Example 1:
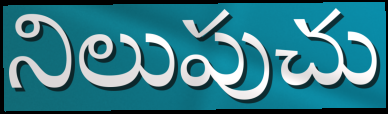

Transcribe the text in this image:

నిలుపుచు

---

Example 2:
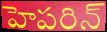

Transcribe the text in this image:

హెపరిన్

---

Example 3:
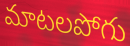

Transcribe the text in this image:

మాటలపోగు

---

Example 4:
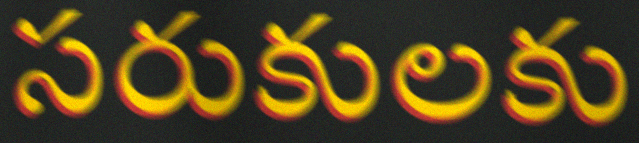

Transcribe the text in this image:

సరుకులకు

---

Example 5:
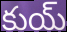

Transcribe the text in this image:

కుయ్